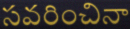
సవరించినా